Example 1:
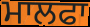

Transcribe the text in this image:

ਮਾਲਫਾ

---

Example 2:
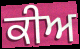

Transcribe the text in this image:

ਕੀਅ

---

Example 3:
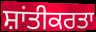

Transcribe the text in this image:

ਸ਼ਾਂਤੀਕਰਤਾ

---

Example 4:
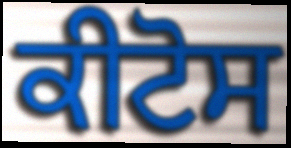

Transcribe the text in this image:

ਕੀਟੋਸ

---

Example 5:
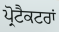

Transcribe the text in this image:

ਪ੍ਰੋਟੈਕਟਰਾਂ